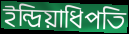
ইন্দ্রিয়াধিপতি